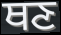
ਥਣ